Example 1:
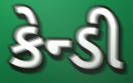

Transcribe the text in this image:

કેન્ડી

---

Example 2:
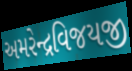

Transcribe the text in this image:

અમરેન્દ્રવિજયજી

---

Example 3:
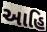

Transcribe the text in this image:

આહિ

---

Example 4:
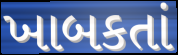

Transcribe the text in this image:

ખાબકતાં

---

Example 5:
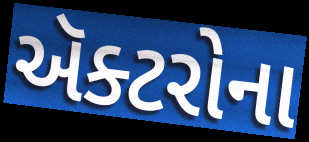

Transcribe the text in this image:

ઍક્ટરોના